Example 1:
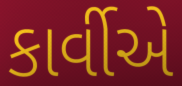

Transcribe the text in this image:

કાર્વીએ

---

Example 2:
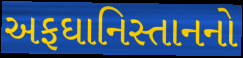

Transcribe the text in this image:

અફઘાનિસ્તાનનો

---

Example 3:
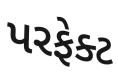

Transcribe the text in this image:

પરફેક્ટ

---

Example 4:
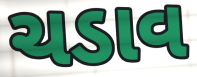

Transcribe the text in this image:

ચડાવ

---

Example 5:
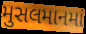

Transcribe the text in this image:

મુસલમાનમાં